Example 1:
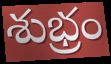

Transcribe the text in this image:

శుభ్రం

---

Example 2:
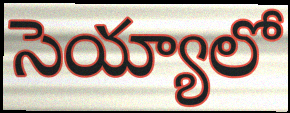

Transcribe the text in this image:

సెయ్యాలో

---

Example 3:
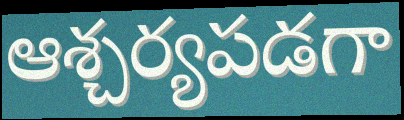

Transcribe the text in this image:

ఆశ్చర్యపడగా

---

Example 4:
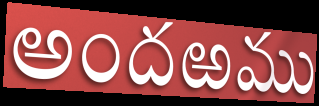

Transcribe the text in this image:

అందఱము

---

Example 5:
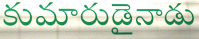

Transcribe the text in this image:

కుమారుడైనాడు